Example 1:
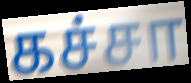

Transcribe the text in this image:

கச்சா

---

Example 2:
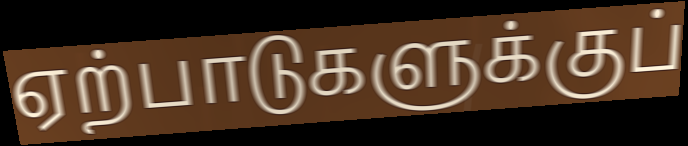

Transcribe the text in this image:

ஏற்பாடுகளுக்குப்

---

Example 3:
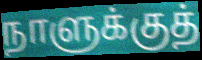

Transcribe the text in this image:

நாளுக்குத்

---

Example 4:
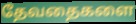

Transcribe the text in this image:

தேவதைகளை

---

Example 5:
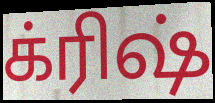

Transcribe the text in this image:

க்ரிஷ்